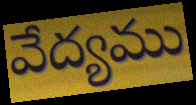
వేద్యము